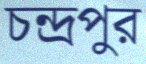
চন্দ্রপুর